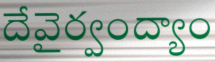
దేవైర్వంద్యాం